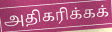
அதிகரிக்கக்